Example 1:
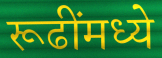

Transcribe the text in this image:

रूढींमध्ये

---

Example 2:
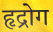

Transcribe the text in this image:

हृद्रोग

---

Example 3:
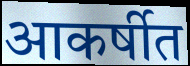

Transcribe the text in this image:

आकर्षीत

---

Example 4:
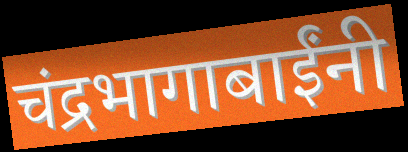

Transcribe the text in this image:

चंद्रभागाबाईंनी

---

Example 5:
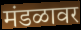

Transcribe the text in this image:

मंडळावर